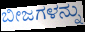
ಬೀಜಗಳನ್ನು